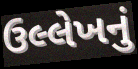
ઉલ્લેખનું